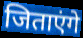
जिताएंगे